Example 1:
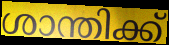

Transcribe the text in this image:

ശാന്തിക്ക്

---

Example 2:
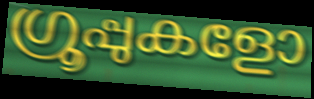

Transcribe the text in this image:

ഗ്രൂപ്പുകളോ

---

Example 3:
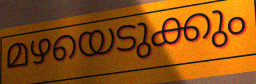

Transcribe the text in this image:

മഴയെടുക്കും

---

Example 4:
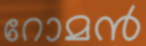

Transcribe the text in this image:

റോമൻ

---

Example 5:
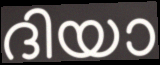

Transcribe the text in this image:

ദിയാ